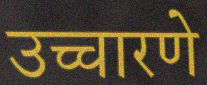
उच्चारणे